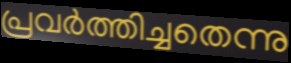
പ്രവർത്തിച്ചതെന്നു